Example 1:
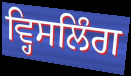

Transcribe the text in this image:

ਵ੍ਹਿਸਲਿੰਗ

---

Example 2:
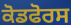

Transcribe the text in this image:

ਕੋਡਫੋਰਸ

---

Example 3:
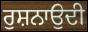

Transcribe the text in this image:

ਰੁਸ਼ਨਾਉਦੀ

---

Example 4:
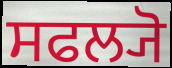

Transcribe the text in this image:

ਸਫਲ੍ਯੋ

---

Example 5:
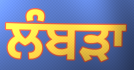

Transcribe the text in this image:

ਲੰਬੜਾ